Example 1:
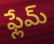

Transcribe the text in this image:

ఫ్లేమ్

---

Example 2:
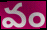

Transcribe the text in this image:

వం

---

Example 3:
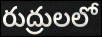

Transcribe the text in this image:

రుద్రులలో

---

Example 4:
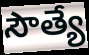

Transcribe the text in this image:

సౌత్యే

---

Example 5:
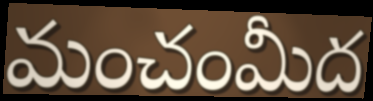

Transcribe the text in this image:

మంచంమీద